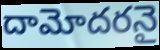
దామోదరనై